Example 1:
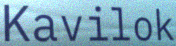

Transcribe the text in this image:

Kavilok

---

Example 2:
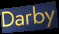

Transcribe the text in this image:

Darby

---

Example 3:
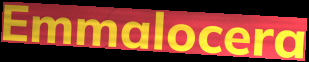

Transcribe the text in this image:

Emmalocera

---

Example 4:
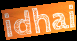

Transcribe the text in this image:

idhai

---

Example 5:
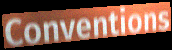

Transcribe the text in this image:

Conventions